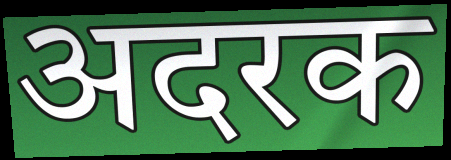
अदरक